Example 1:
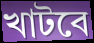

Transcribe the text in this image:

খাটবে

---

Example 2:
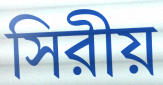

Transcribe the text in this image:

সিরীয়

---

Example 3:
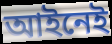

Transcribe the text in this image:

আইনেই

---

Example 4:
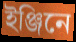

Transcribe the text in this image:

ইঞ্জিনে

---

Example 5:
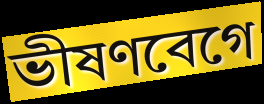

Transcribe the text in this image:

ভীষণবেগে